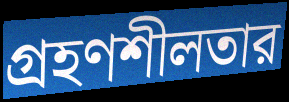
গ্রহণশীলতার